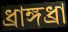
ধ্রাঙ্গধ্রা